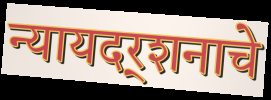
न्यायदर्शनाचे